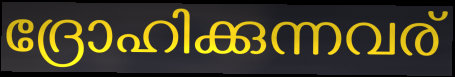
ദ്രോഹിക്കുന്നവര്